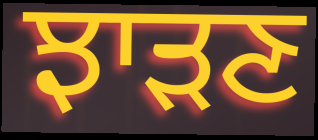
ਝਾੜਣ